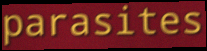
parasites